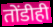
तोंडीही